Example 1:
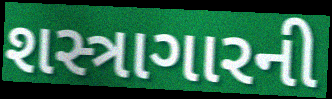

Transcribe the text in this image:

શસ્ત્રાગારની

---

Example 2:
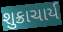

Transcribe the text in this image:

શુક્રાચાર્ય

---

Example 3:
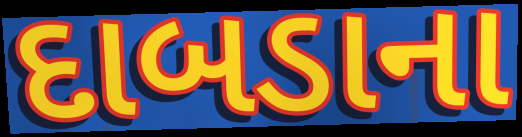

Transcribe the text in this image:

દાબડાના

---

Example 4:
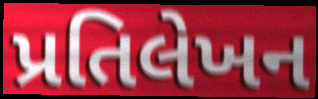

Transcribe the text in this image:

પ્રતિલેખન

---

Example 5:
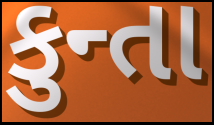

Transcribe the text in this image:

કુન્તા